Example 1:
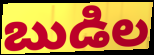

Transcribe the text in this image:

బుడిల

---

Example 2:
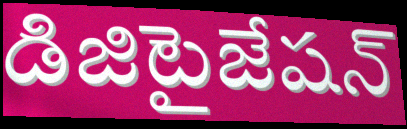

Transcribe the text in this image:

డిజిటైజేషన్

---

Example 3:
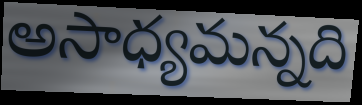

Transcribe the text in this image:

అసాధ్యమన్నది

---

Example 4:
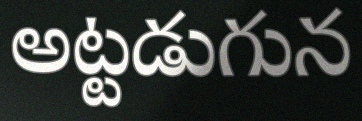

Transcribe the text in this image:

అట్టడుగున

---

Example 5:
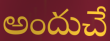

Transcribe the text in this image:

అందుచే